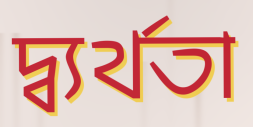
দ্ব্যর্থতা